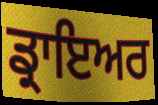
ਡ੍ਰਾਇਅਰ